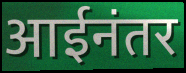
आईनंतर